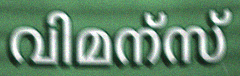
വിമന്സ്